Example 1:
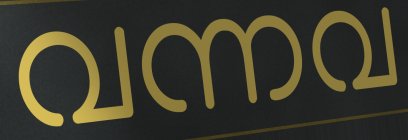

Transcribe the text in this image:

വന്നവ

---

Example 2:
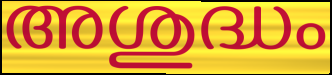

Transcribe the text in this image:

അശുദ്ധം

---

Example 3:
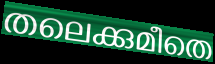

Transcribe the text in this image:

തലെക്കുമീതെ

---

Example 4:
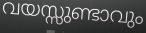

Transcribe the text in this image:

വയസ്സുണ്ടാവും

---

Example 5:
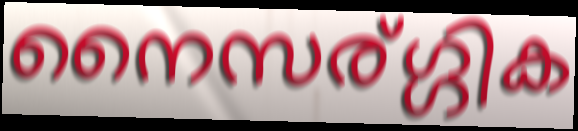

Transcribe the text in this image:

നൈസര്ഗ്ഗിക